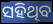
ସହିଥିବ